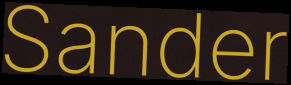
Sander